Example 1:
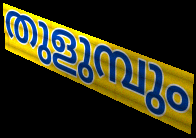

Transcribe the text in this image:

തുളുമ്പും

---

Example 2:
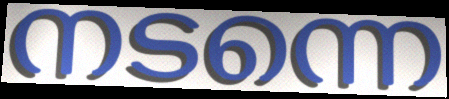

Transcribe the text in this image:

നടന്നെ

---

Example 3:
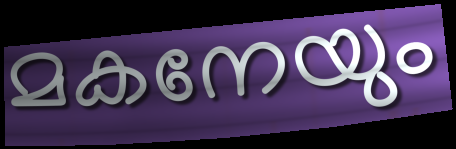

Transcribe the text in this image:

മകനേയും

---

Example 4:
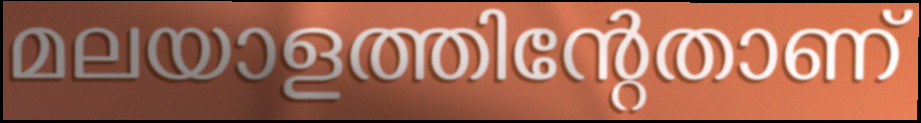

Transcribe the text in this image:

മലയാളത്തിന്റേതാണ്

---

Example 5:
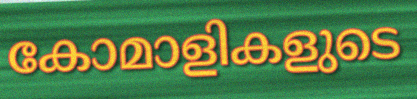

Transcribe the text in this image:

കോമാളികളുടെ